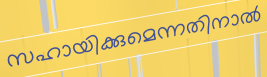
സഹായിക്കുമെന്നതിനാൽ